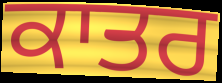
ਕਾਤਰ